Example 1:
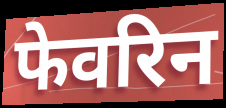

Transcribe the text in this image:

फेवरिन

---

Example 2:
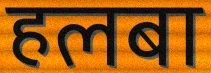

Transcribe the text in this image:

हलबा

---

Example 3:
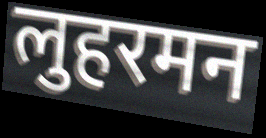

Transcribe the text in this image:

लुहरमन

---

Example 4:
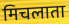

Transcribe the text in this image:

मिचलाता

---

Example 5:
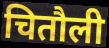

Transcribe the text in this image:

चितौली